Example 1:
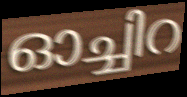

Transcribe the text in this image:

ഓച്ചിറ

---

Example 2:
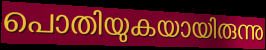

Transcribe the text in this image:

പൊതിയുകയായിരുന്നു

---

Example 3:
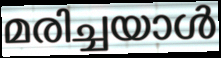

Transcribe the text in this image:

മരിച്ചയാൾ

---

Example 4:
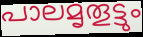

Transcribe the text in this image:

പാലമൃതൂട്ടും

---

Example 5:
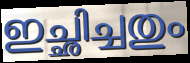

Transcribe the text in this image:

ഇച്ഛിച്ചതും